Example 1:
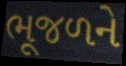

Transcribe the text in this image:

ભૂજળને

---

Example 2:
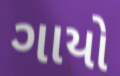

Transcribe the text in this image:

ગાયો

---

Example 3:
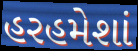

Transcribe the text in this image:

હરહમેશાં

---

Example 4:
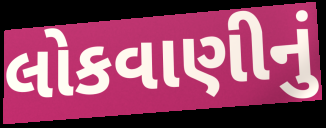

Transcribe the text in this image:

લોકવાણીનું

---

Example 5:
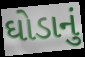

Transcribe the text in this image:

ઘોડાનું